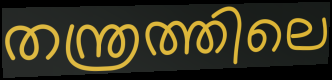
തന്ത്രത്തിലെ